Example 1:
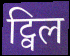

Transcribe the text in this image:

ट्विल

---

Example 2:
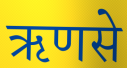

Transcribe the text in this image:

ऋणसे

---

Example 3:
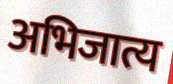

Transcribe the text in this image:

अभिजात्य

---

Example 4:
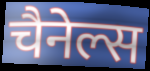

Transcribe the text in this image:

चैनेल्स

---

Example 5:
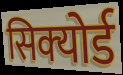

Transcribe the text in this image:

सिक्‍योर्ड